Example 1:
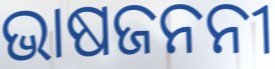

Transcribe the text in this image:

ଭାଷଜନନୀ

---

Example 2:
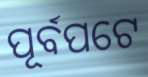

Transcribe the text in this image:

ପୂର୍ବପଟେ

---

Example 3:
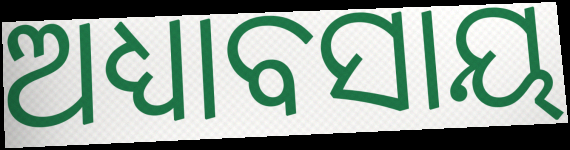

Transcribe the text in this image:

ଅଧ୍ୟାବସାୟ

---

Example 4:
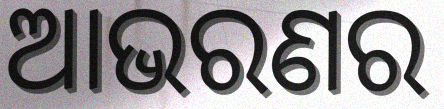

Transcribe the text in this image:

ଆଭରଣର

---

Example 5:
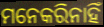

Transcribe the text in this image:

ମନେକରିନାହିଁ